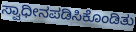
ಸ್ವಾಧೀನಪಡಿಸಿಕೊಂಡಿತು